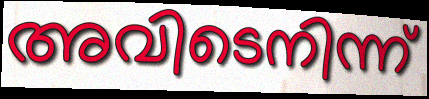
അവിടെനിന്ന്